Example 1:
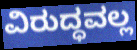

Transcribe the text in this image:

ವಿರುದ್ಧವಲ್ಲ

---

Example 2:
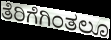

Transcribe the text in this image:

ತೆರಿಗೆಗಿಂತಲೂ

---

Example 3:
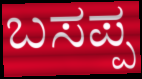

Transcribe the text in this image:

ಬಸಪ್ಪ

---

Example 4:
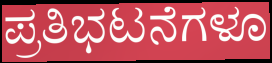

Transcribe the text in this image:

ಪ್ರತಿಭಟನೆಗಳೂ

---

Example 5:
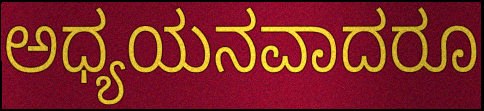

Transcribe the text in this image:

ಅಧ್ಯಯನವಾದರೂ